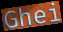
Ghei